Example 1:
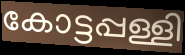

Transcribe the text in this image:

കോട്ടപ്പള്ളി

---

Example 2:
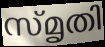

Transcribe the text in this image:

സ്മൃതി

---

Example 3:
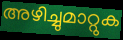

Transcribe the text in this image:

അഴിച്ചുമാറ്റുക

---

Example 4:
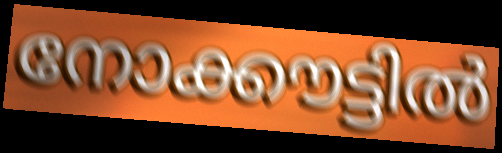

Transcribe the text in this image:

നോക്കൗട്ടിൽ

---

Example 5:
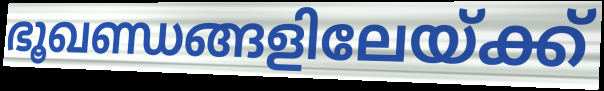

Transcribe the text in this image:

ഭൂഖണ്ഡങ്ങളിലേയ്ക്ക്